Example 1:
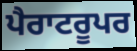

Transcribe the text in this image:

ਪੈਰਾਟਰੂਪਰ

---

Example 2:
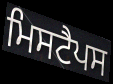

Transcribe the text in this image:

ਮਿਸਟੈਪਸ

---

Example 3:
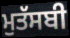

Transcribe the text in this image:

ਮੁਤੱਸਬੀ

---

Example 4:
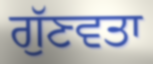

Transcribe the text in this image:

ਗੁੱਣਵਤਾ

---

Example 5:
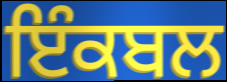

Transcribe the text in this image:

ਇੰਕਬਲ